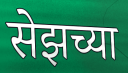
सेझच्या